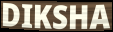
DIKSHA